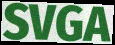
SVGA